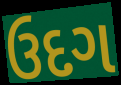
ઉદગ